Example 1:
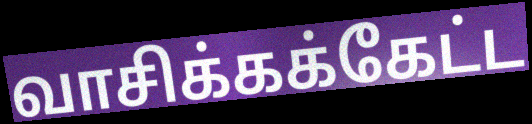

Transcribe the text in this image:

வாசிக்கக்கேட்ட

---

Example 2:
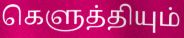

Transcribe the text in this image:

கெளுத்தியும்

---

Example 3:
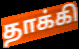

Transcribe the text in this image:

தாக்கி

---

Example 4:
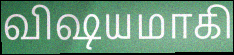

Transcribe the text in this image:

விஷயமாகி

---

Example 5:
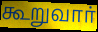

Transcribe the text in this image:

கூறுவார்